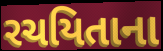
રચયિતાના